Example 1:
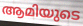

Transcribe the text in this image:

ആമിയുടെ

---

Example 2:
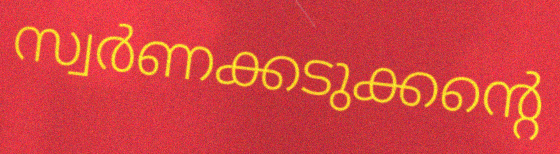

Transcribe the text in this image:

സ്വർണക്കടുക്കന്റെ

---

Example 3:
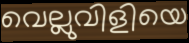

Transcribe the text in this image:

വെല്ലുവിളിയെ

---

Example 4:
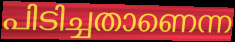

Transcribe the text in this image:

പിടിച്ചതാണെന്ന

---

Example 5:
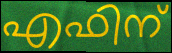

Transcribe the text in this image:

എഫിന്